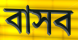
বাসব